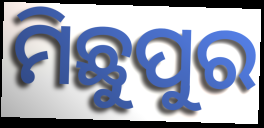
ମିଛୁପୁର